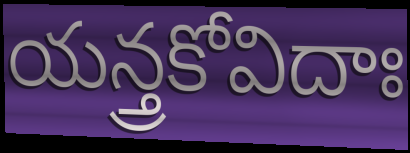
యన్త్రకోవిదాః